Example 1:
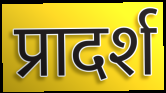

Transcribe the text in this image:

प्रादर्श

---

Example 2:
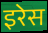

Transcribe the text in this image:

इरेस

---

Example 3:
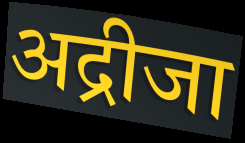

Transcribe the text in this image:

अद्रीजा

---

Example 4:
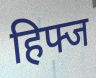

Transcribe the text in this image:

हिफ्ज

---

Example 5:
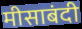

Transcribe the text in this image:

मीसाबंदी